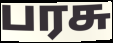
பரசு